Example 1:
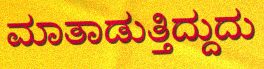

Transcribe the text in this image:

ಮಾತಾಡುತ್ತಿದ್ದುದು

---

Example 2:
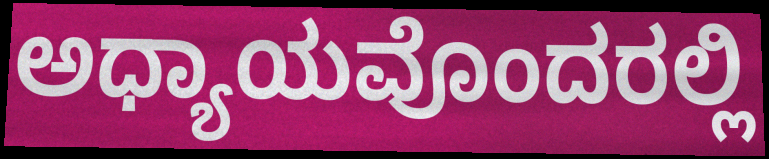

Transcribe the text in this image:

ಅಧ್ಯಾಯವೊಂದರಲ್ಲಿ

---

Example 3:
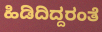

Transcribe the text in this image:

ಹಿಡಿದಿದ್ದರಂತೆ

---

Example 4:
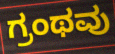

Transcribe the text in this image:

ಗ್ರಂಥವು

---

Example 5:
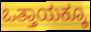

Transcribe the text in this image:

ಒತ್ತಾಯಕ್ಕೂ